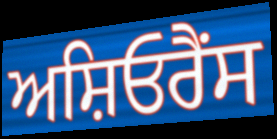
ਅਸ਼ਿਓਰੈਂਸ